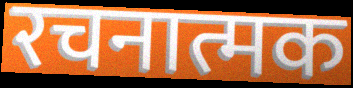
रचनात्मक